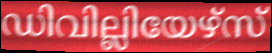
ഡിവില്ലിയേഴ്സ്